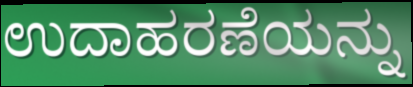
ಉದಾಹರಣೆಯನ್ನು